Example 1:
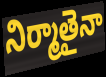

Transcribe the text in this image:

నిర్మాతైనా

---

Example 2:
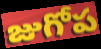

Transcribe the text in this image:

జుగోప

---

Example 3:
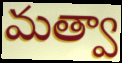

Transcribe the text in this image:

మత్వా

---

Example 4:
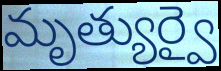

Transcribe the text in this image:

మృత్యుర్వై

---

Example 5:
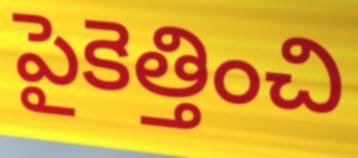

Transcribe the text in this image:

పైకెత్తించి